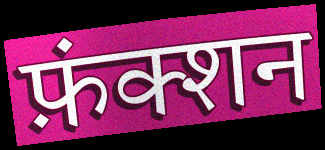
फ़ंक्शन